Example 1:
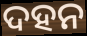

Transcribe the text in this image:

ଦହନ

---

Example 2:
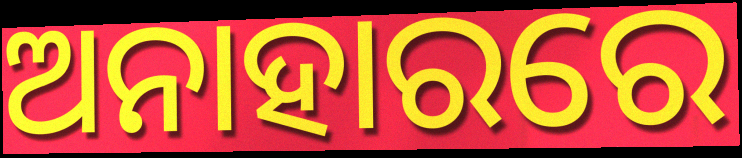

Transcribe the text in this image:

ଅନାହାରରେ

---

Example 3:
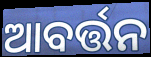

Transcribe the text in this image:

ଆବର୍ତ୍ତନ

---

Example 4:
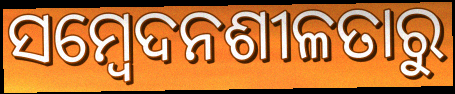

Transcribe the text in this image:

ସମ୍ବେଦନଶୀଳତାରୁ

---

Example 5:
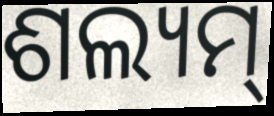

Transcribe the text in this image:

ଶଲ୍ୟମ୍